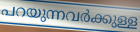
പറയുന്നവർക്കുള്ള